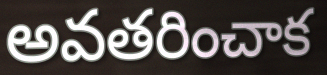
అవతరించాక